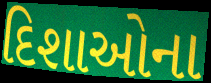
દિશાઓના